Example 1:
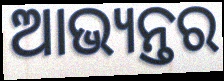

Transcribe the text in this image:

ଆଭ୍ୟନ୍ତର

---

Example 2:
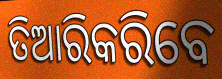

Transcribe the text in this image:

ତିଆରିକରିବେ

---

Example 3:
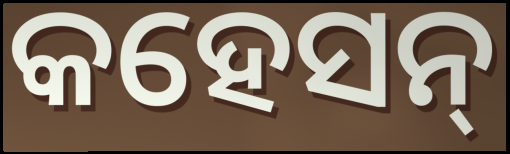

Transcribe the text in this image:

କହେସନ୍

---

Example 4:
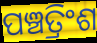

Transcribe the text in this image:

ପଞ୍ଚତ୍ରିଂଶ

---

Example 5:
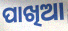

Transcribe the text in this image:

ପାଖିଆ